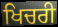
ਖਿਚਰੀ